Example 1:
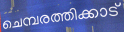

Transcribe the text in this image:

ചെമ്പരത്തിക്കാട്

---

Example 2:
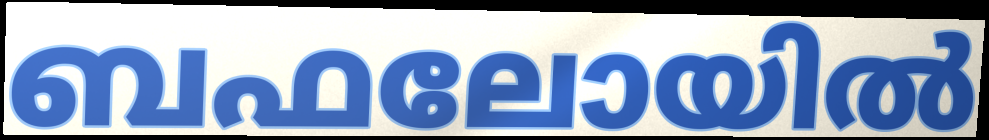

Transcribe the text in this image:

ബഫലോയിൽ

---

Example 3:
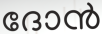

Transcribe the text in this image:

ദോൻ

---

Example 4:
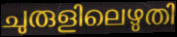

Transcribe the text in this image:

ചുരുളിലെഴുതി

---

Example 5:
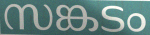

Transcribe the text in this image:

സങ്കടം